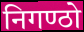
निगण्ठो